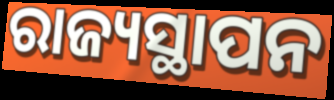
ରାଜ୍ୟସ୍ଥାପନ